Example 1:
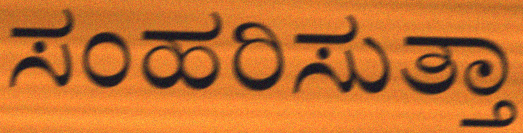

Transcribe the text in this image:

ಸಂಹರಿಸುತ್ತಾ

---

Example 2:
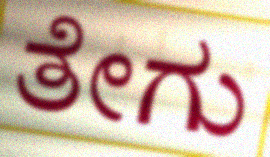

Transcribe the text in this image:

ತೇಗು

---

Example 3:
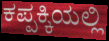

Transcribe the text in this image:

ಕಪ್ಪಕ್ಕಿಯಲ್ಲಿ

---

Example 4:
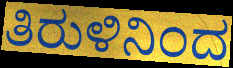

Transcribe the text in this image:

ತಿರುಳಿನಿಂದ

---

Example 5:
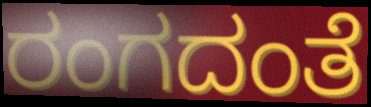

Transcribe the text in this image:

ರಂಗದಂತೆ